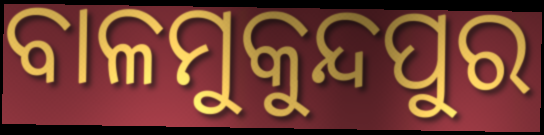
ବାଳମୁକୁନ୍ଦପୁର